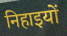
निहाइयों